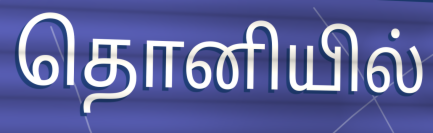
தொனியில்